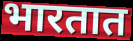
भारतात